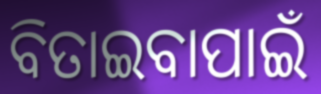
ବିତାଇବାପାଇଁ